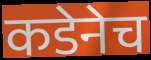
कडेनेच